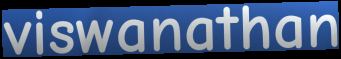
viswanathan